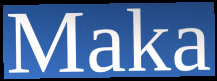
Maka